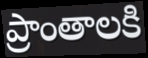
ప్రాంతాలకి